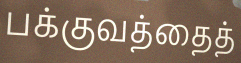
பக்குவத்தைத்